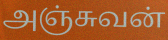
அஞ்சுவன்